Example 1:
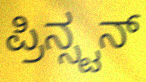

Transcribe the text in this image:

ಪ್ರಿನ್ಸ್ಟನ್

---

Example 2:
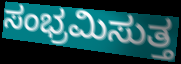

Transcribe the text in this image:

ಸಂಭ್ರಮಿಸುತ್ತ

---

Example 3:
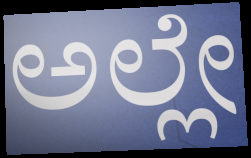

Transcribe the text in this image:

ಅಲ್ಲೇ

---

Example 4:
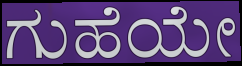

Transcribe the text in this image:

ಗುಹೆಯೇ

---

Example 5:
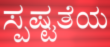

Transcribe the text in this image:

ಸ್ಪಷ್ಟತೆಯ